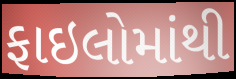
ફાઇલોમાંથી